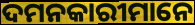
ଦମନକାରୀମାନେ